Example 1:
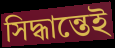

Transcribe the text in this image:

সিদ্ধান্তেই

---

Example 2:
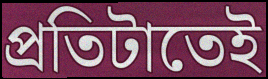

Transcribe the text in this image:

প্রতিটাতেই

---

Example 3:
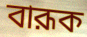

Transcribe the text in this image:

বারূক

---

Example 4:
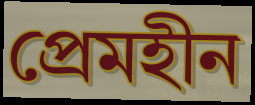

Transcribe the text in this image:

প্রেমহীন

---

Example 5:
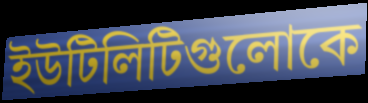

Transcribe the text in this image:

ইউটিলিটিগুলোকে